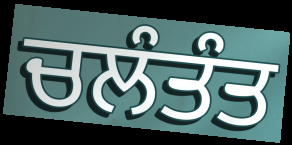
ਚਲੰਤੰਤ